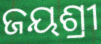
ଜୟଶ୍ରୀ